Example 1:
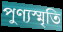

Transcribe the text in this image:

পুণ্যস্মৃতি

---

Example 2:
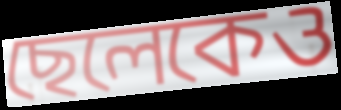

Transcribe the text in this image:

ছেলেকেও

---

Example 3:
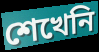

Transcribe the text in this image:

শেখেনি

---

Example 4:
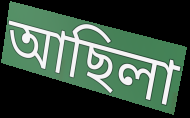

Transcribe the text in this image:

আছিলা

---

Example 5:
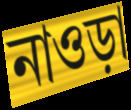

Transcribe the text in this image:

নাওড়া